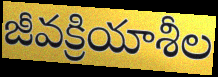
జీవక్రియాశీల